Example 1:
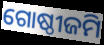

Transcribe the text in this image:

ଗୋଷ୍ଠୀଜମି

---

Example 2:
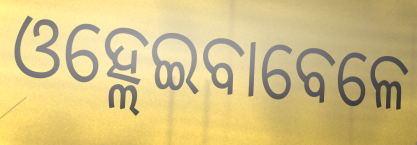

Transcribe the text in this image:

ଓହ୍ଲେଇବାବେଳେ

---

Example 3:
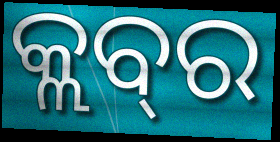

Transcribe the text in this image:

କ୍ଲବ୍‌ର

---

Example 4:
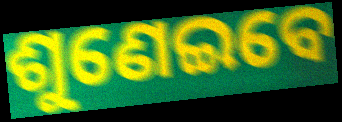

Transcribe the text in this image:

ଶୁଣେଇବେ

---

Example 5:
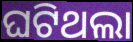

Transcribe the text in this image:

ଘଟିଥଲା